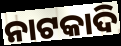
ନାଟକାଦି